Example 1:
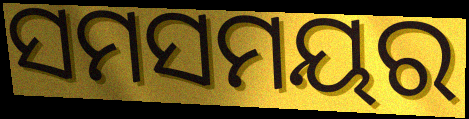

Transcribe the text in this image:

ସମସମୟର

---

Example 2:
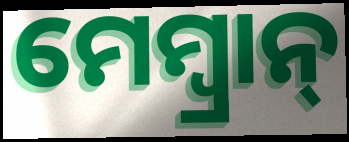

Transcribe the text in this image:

ମେମ୍ବ୍ରାନ୍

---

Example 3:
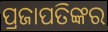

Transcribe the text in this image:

ପ୍ରଜାପତିଙ୍କର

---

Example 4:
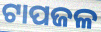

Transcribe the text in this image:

ଟାପଜଳ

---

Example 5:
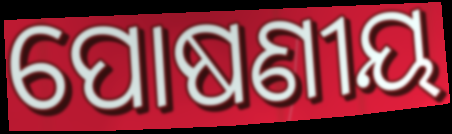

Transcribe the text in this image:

ପୋଷଣୀୟ